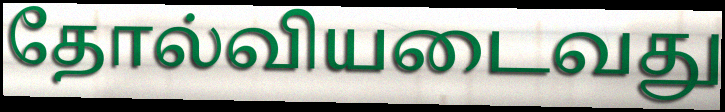
தோல்வியடைவது